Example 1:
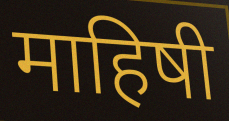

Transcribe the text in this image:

माहिषी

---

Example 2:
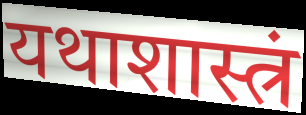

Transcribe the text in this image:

यथाशास्त्रं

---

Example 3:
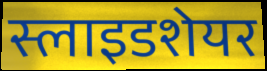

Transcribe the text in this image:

स्लाइडशेयर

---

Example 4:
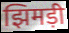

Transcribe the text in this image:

झिमड़ी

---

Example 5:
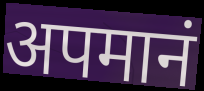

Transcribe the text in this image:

अपमानं